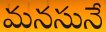
మనసునే